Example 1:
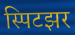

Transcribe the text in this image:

स्पिटझर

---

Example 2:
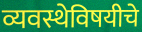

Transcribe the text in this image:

व्यवस्थेविषयीचे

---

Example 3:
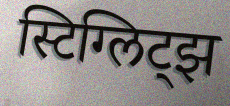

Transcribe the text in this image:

स्टिग्लिट्झ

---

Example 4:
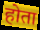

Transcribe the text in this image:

होता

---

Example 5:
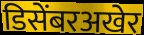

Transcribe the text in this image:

डिसेंबरअखेर